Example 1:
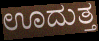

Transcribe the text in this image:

ಊದುತ್ತ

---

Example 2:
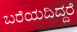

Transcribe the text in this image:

ಬರೆಯದಿದ್ದರೆ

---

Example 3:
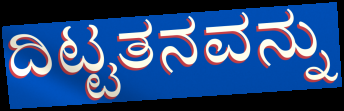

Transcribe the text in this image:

ದಿಟ್ಟತನವನ್ನು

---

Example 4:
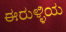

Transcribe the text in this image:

ಈರುಳ್ಳಿಯ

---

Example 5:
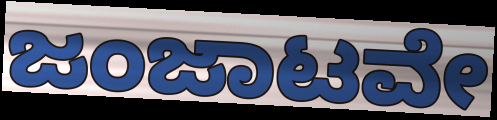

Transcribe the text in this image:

ಜಂಜಾಟವೇ